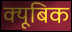
क्यूबिक